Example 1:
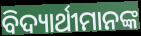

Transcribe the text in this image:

ବିଦ୍ୟାର୍ଥୀମାନଙ୍କ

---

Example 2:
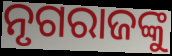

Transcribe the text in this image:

ନୃଗରାଜଙ୍କୁ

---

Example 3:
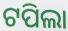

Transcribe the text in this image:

ଟପିଲା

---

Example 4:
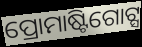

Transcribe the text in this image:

ପ୍ରୋମାଷ୍ଟିଗୋଟ୍ସ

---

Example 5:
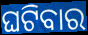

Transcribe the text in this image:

ଘଟିବାର